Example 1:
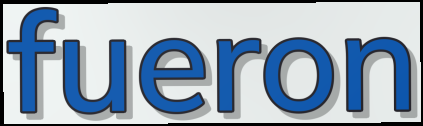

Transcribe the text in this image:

fueron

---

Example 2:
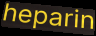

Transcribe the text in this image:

heparin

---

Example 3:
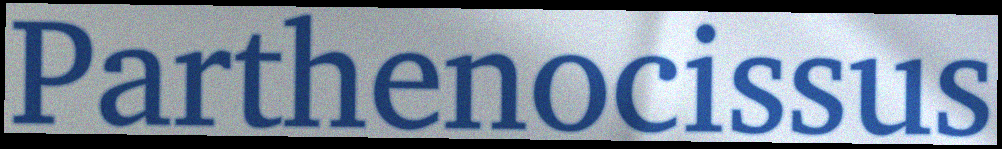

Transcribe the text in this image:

Parthenocissus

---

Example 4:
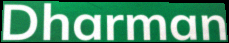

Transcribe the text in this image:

Dharman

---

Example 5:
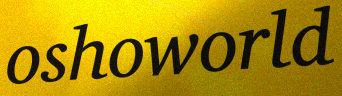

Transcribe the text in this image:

oshoworld